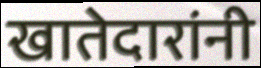
खातेदारांनी